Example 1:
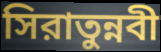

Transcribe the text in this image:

সিরাতুন্নবী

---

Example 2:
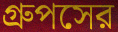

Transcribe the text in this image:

গ্রুপসের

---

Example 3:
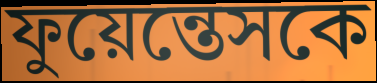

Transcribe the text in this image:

ফুয়েন্তেসকে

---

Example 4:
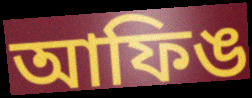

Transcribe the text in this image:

আফিঙ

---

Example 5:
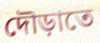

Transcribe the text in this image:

দৌড়াতে